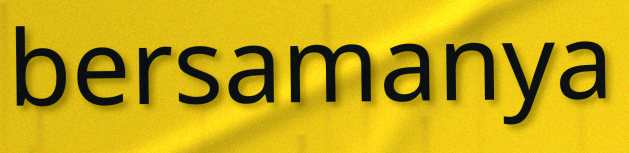
bersamanya